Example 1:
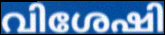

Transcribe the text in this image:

വിശേഷി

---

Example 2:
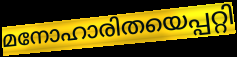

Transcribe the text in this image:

മനോഹാരിതയെപ്പറ്റി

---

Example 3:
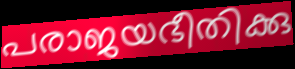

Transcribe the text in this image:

പരാജയഭീതിക്കു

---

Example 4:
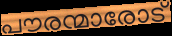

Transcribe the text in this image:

പൗരന്മാരോട്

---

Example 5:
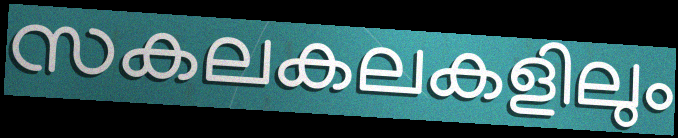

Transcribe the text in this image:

സകലകലകളിലും